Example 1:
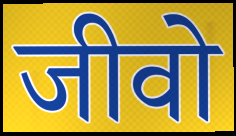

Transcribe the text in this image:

जीवो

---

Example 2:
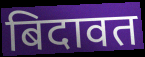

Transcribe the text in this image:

बिदावत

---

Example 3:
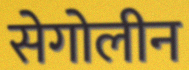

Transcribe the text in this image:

सेगोलीन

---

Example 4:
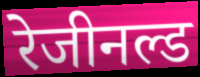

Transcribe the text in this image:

रेजीनल्ड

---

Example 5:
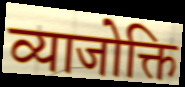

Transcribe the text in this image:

व्याजोक्ति